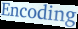
Encoding